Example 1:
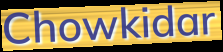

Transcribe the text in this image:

Chowkidar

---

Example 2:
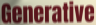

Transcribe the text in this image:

Generative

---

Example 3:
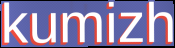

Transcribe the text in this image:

kumizh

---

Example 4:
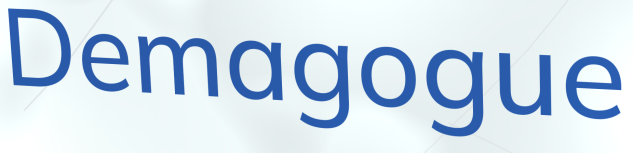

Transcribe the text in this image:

Demagogue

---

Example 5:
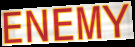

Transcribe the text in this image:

ENEMY